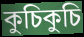
কুচিকুচি